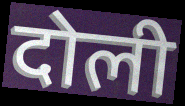
दोली